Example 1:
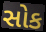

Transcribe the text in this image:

સોક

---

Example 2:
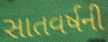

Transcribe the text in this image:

સાતવર્ષની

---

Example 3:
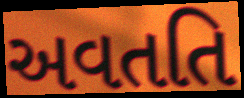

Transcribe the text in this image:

અવતતિ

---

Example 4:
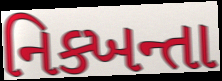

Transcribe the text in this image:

નિક્ખન્તા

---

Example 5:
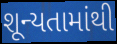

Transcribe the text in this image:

શૂન્યતામાંથી